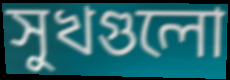
সুখগুলো